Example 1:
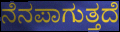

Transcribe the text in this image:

ನೆನಪಾಗುತ್ತದೆ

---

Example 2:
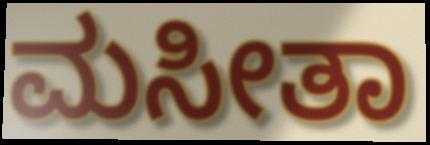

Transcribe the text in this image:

ಮಸೀತಾ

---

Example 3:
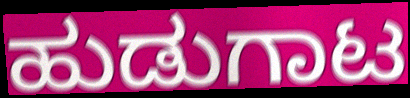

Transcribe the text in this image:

ಹುಡುಗಾಟ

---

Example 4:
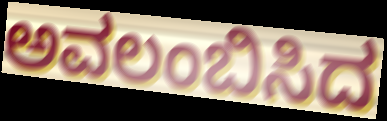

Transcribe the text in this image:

ಅವಲಂಬಿಸಿದ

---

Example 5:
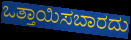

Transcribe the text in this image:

ಒತ್ತಾಯಿಸಬಾರದು